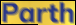
Parth